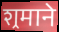
श्रमाने